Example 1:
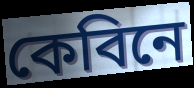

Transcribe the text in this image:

কেবিনে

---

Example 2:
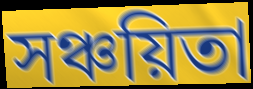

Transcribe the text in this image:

সঞ্চয়িতা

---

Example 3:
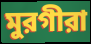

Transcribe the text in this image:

মুরগীরা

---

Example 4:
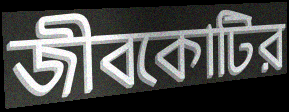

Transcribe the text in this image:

জীবকোটির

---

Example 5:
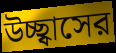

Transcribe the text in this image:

উচ্ছ্বাসের